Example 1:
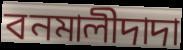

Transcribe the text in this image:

বনমালীদাদা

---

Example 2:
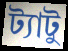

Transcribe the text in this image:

ট্যাটু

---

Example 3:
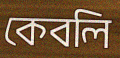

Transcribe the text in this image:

কেবলি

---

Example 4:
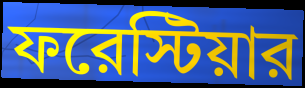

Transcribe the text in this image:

ফরেস্টিয়ার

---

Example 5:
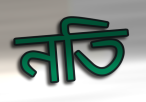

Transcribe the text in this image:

নতি